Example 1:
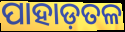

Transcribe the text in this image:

ପାହାଡ଼ତଳ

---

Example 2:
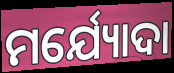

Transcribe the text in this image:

ମର୍ଯ୍ୟୋଦା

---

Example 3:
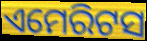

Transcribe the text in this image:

ଏମେରିଟସ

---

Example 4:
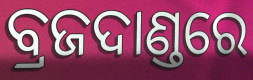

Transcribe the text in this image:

ବ୍ରଜଦାଣ୍ଡରେ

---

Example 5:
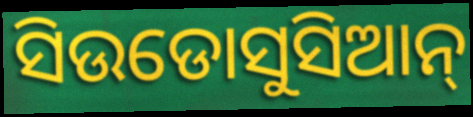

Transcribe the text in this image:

ସିଉଡୋସୁସିଆନ୍